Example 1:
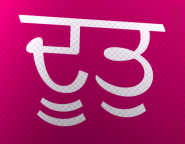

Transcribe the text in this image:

ਦੂਤੁ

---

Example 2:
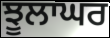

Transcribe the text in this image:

ਝੂਲਾਘਰ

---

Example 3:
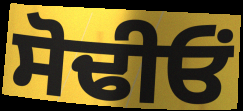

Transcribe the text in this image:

ਸੋਢੀਓਂ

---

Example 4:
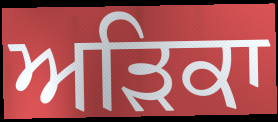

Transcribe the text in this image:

ਅੜਿਕਾ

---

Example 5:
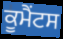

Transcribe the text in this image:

ਕੂਮੈਂਟਸ